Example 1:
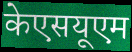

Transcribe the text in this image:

केएसयूएम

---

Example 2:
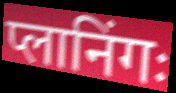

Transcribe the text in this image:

प्लानिंगः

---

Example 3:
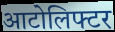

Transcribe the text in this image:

आटोलिफ्टर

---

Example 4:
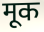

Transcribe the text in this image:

मूक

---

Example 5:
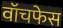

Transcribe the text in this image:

वॉचफेस